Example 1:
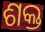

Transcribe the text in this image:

ଶକ୍ତ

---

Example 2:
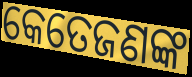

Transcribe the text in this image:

କେତେଜଣଙ୍କ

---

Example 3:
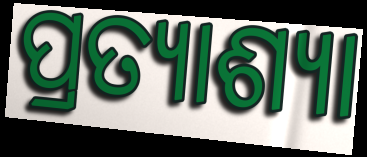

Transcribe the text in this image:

ପ୍ରତ୍ୟାଶ୍ୟା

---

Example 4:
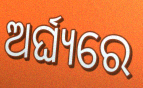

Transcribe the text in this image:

ଅର୍ଘ୍ୟରେ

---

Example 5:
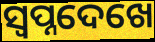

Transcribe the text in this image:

ସ୍ୱପ୍ନଦେଖେ